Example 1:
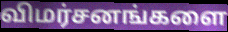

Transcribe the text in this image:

விமர்சனங்களை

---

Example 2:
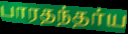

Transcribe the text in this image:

பாரதந்தர்ய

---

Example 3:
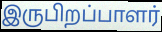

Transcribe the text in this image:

இருபிறப்பாளர்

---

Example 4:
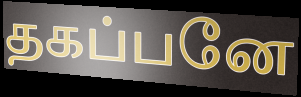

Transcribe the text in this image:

தகப்பனே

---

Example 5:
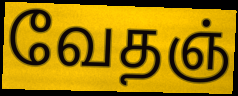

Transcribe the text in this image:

வேதஞ்